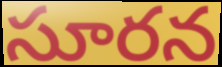
సూరన